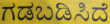
ಗಡಬಡಿಸಿದೆ